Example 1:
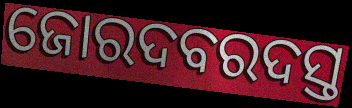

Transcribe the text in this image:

ଜୋରଦବରଦସ୍ତ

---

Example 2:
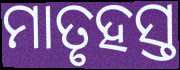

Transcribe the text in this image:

ମାତୃହସ୍ତ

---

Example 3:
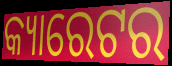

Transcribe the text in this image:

କ୍ୟାରେଟର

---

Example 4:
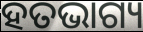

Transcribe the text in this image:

ହତଭାଗ୍ୟ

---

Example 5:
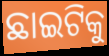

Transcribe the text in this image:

ଛାଇଟିକୁ